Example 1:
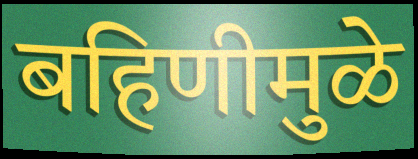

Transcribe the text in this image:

बहिणीमुळे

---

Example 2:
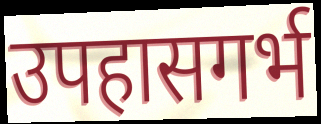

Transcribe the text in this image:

उपहासगर्भ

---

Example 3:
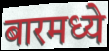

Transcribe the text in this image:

बारमध्ये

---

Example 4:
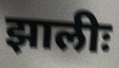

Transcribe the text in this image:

झालीः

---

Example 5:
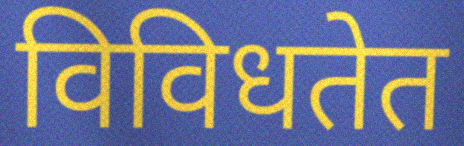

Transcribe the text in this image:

विविधतेत